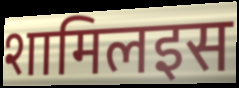
शामिलइस